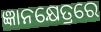
ଜ୍ଞାନକ୍ଷେତ୍ରରେ